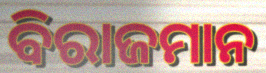
ବିରାଜମାନ